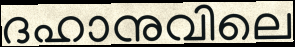
ദഹാനുവിലെ